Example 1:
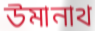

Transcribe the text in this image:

উমানাথ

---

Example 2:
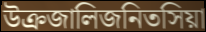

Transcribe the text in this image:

উক্রজালিজনিতসিয়া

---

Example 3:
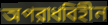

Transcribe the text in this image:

অপরাধবিহীন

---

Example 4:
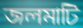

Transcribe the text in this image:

জলমাটি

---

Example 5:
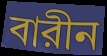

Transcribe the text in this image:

বারীন